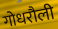
गोधरौली